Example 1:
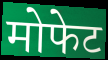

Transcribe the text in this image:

मोफेट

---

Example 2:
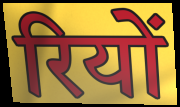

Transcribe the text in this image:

रियों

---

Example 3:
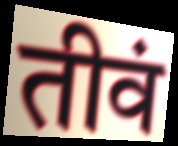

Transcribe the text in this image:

तीवं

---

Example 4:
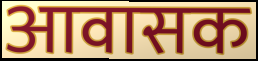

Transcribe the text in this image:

आवासक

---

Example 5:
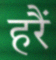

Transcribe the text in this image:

हरैं